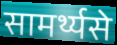
सामर्थ्यसे